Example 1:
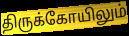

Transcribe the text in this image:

திருக்கோயிலும்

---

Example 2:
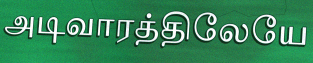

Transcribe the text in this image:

அடிவாரத்திலேயே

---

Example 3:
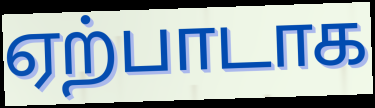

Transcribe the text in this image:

ஏற்பாடாக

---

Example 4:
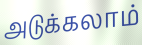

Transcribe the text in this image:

அடுக்கலாம்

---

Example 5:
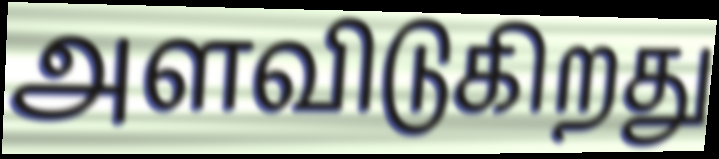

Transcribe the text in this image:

அளவிடுகிறது